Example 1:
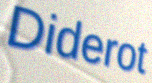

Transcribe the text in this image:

Diderot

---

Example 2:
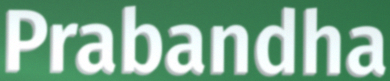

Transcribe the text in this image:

Prabandha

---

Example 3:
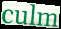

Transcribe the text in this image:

culm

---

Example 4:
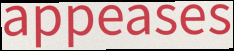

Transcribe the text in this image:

appeases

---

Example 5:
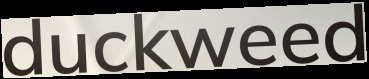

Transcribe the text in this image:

duckweed